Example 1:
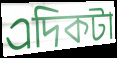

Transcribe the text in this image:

এদিকটা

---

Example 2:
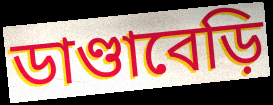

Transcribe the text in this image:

ডাণ্ডাবেড়ি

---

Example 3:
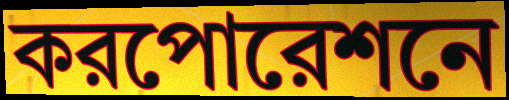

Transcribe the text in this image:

করপোরেশনে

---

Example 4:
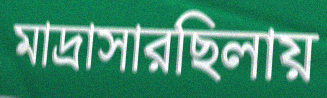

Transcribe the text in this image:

মাদ্রাসারছিলায়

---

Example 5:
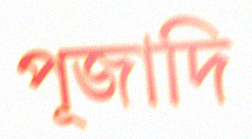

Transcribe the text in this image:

পূজাদি